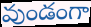
వుండంగా